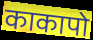
काकापो